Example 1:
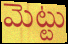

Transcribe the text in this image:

మెట్టు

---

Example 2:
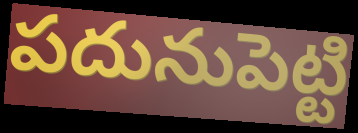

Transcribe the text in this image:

పదునుపెట్టి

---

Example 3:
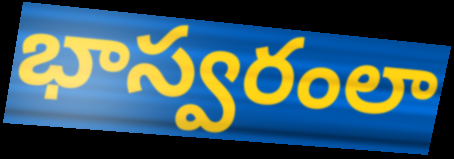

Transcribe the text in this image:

భాస్వరంలా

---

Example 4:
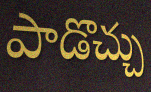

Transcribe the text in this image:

పాడొచ్చు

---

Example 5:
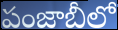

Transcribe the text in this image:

పంజాబీలో